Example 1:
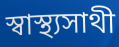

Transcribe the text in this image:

স্বাস্থ্যসাথী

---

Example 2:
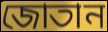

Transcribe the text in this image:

জোতান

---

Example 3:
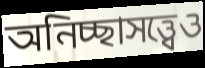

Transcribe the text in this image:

অনিচ্ছাসত্ত্বেও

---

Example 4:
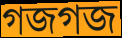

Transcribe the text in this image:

গজগজ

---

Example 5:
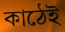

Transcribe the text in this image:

কাঠেই